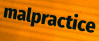
malpractice